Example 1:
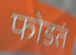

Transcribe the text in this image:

फोडतं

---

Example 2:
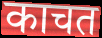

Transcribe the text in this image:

काचत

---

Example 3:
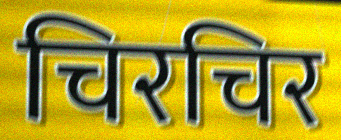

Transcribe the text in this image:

चिरचिर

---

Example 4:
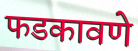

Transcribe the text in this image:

फडकावणे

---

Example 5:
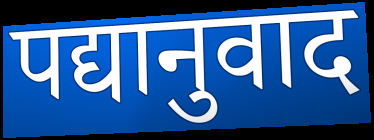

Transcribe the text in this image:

पद्यानुवाद